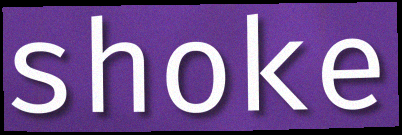
shoke